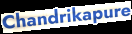
Chandrikapure